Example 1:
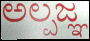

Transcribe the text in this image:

ಅಲ್ಪಜ್ಞ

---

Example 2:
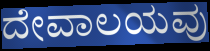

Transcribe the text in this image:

ದೇವಾಲಯವು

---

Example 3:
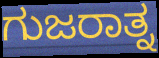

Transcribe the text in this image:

ಗುಜರಾತ್ನ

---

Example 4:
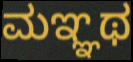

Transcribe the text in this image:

ಮಞ್ಞಥ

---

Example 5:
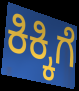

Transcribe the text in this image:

ಕಿಕ್ಕಿಗೆ